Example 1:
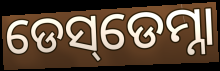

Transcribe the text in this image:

ଡେସ୍‌ଡେମ୍ନା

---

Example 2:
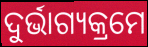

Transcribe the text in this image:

ଦୁର୍ଭାଗ୍ୟକ୍ରମେ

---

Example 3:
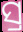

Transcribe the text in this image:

ସ୍ର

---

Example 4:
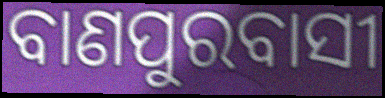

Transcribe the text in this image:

ବାଣପୁରବାସୀ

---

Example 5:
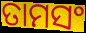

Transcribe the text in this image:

ତାମସଂ